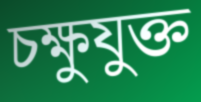
চক্ষুযুক্ত